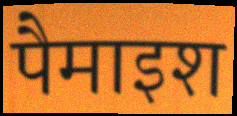
पैमाइश